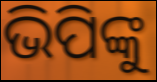
ଭିପିଙ୍କୁ